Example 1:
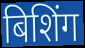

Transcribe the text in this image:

बिशिंग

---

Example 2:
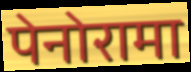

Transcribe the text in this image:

पेनोरामा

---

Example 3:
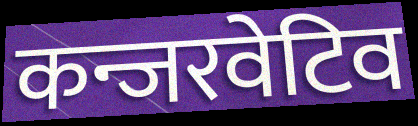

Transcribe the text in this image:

कन्जरवेटिव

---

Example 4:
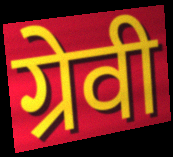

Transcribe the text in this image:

ग्रेवी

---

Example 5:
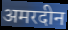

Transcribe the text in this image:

अमरदीन